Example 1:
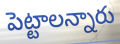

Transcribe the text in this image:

పెట్టాలన్నారు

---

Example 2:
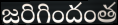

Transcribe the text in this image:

జరిగిందంత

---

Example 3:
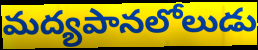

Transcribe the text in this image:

మద్యపానలోలుడు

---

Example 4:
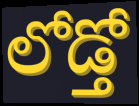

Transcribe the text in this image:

లోడ్తో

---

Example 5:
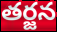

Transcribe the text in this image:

తర్జన